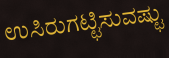
ಉಸಿರುಗಟ್ಟಿಸುವಷ್ಟು